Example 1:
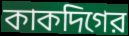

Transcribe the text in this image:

কাকদিগের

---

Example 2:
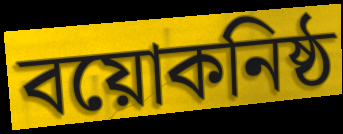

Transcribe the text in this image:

বয়োকনিষ্ঠ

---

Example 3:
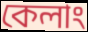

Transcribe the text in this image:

কেলাং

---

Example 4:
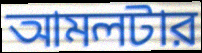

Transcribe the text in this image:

আমলটার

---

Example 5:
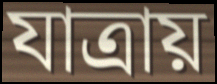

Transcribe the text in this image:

যাত্রায়